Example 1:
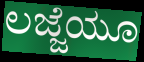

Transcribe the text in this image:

ಲಜ್ಜೆಯೂ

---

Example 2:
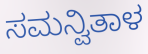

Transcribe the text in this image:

ಸಮನ್ವಿತಾಳ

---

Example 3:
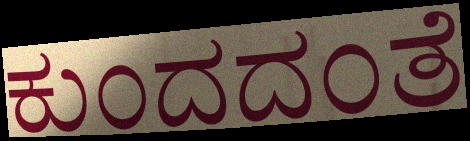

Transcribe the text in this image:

ಕುಂದದಂತೆ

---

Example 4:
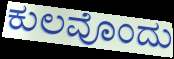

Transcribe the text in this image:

ಕುಲವೊಂದು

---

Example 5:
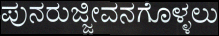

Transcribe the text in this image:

ಪುನರುಜ್ಜೀವನಗೊಳ್ಳಲು